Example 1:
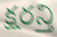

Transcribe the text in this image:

క్షరన్తి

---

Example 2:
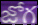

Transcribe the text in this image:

జోగ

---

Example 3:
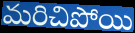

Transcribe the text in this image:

మరిచిపోయి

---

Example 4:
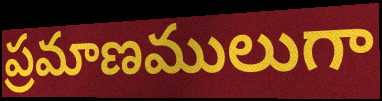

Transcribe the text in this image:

ప్రమాణములుగా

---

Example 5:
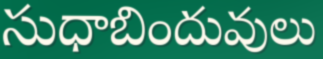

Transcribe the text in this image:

సుధాబిందువులు